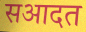
सआदत